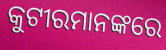
କୁଟୀରମାନଙ୍କରେ